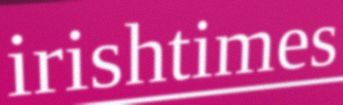
irishtimes